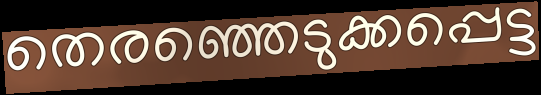
തെരഞ്ഞെടുക്കപ്പെട്ട